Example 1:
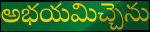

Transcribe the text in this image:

అభయమిచ్చెను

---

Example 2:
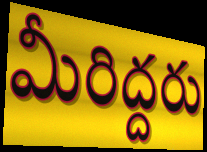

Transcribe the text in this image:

మీరిద్దరు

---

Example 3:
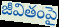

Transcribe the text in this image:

జీవితంపై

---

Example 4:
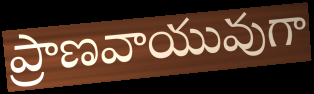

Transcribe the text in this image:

ప్రాణవాయువుగా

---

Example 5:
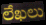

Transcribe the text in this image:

లేఖలు